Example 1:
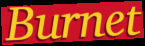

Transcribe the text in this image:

Burnet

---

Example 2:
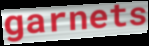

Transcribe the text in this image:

garnets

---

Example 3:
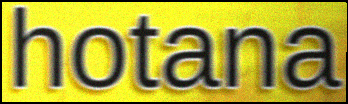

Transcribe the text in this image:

hotana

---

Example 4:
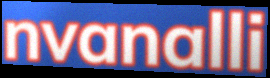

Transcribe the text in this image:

nvanalli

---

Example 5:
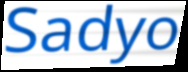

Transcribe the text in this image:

Sadyo